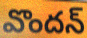
వొందన్